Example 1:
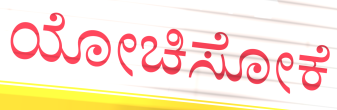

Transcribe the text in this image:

ಯೋಚಿಸೋಕೆ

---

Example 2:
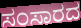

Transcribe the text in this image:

ಸಂಸಾರದ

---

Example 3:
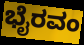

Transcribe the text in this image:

ಭೈರವಂ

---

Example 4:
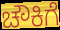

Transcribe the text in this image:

ಚೌಕಿಗೆ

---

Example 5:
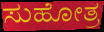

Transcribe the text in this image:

ಸುಹೋತ್ರ